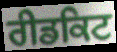
ਰੀਡਕਿਟ